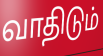
வாதிடும்